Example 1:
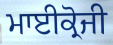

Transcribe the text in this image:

ਮਾਈਕ੍ਰੋਜੀ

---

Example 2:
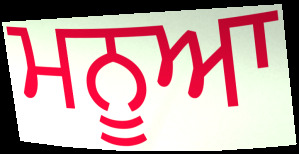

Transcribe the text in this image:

ਮਨੂਆ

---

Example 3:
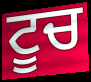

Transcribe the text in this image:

ਟੂਚ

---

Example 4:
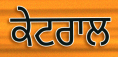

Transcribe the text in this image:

ਕੇਟਰਾਲ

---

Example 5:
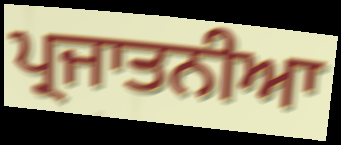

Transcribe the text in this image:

ਪ੍ਰਜਾਤਨੀਆ